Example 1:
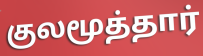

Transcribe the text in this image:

குலமூத்தார்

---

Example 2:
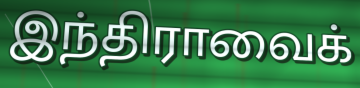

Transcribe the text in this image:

இந்திராவைக்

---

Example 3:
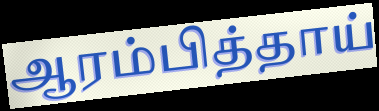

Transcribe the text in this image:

ஆரம்பித்தாய்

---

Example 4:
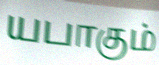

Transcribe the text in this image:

யபாகும்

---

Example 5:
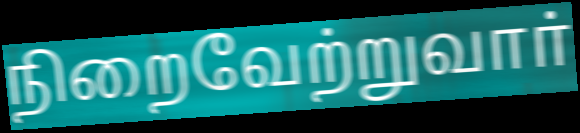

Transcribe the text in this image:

நிறைவேற்றுவார்